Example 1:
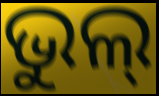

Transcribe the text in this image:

ଭୁଲ୍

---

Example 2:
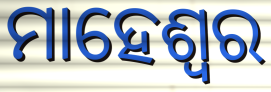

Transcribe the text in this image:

ମାହେଶ୍ଵର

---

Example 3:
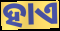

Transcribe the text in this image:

ହାଏ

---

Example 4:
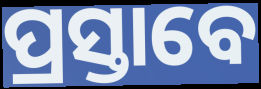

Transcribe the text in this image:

ପ୍ରସ୍ତାବେ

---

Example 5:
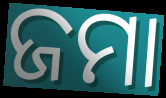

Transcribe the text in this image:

ଜମା